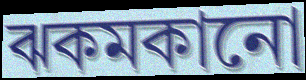
ঝকমকানো